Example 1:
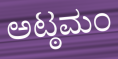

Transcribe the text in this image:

ಅಟ್ಠಮಂ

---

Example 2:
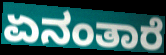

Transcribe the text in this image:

ಏನಂತಾರೆ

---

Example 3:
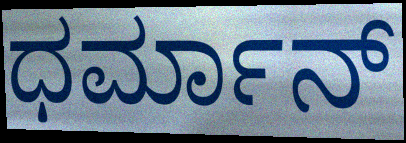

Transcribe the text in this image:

ಧರ್ಮಾನ್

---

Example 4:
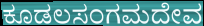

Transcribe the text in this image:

ಕೂಡಲಸಂಗಮದೇವ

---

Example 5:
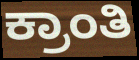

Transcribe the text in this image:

ಕ್ರಾಂತಿ